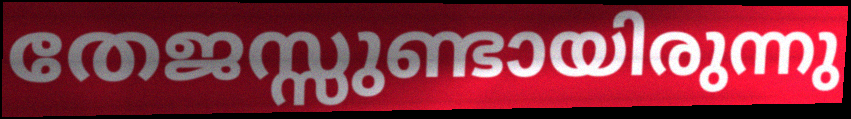
തേജസ്സുണ്ടായിരുന്നു